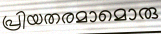
പ്രിയതരമാമൊരു